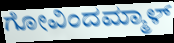
ಗೋವಿಂದಮ್ಮಾಳ್